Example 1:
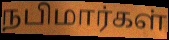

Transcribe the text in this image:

நபிமார்கள்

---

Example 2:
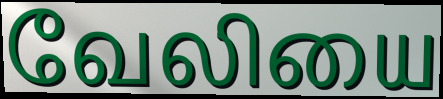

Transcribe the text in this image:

வேலியை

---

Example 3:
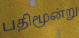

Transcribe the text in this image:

பதிமூன்று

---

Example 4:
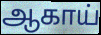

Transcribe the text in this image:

ஆகாய்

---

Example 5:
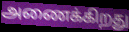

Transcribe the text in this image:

அணைக்கிறது